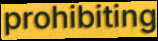
prohibiting